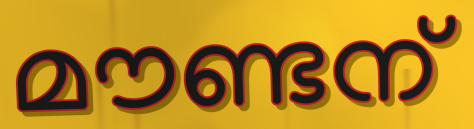
മൗണ്ടന്